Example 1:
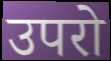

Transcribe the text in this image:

उपरो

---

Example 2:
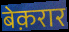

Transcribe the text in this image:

बेक़रार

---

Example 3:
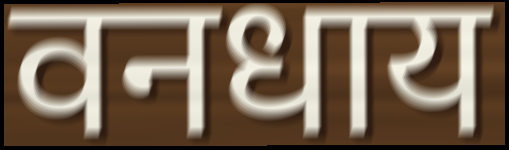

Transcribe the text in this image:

वनधाय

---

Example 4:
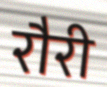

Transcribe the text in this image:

रौरी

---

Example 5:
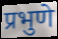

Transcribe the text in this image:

प्रभुणे